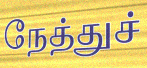
நேத்துச்